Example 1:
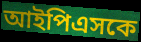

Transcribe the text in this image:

আইপিএসকে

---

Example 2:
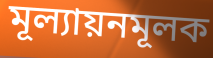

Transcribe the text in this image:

মূল্যায়নমূলক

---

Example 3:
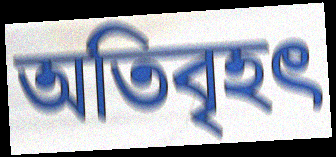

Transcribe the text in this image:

অতিবৃহৎ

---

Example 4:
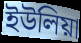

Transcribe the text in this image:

ইউলিয়া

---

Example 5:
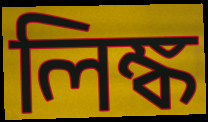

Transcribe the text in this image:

লিঙ্ক